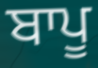
ਬਾਪੂ